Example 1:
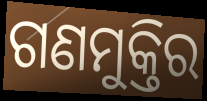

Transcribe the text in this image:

ଗଣମୁକ୍ତିର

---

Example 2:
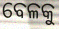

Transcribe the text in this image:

ବେଳକୁ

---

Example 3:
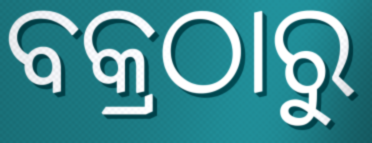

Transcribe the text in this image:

ବକ୍ରଠାରୁ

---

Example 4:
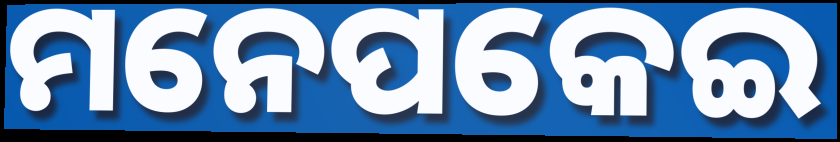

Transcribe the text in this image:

ମନେପକେଇ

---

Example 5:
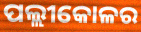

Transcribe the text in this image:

ପଲ୍ଲୀକୋଳର